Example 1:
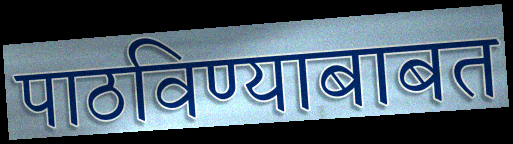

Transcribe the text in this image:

पाठविण्याबाबत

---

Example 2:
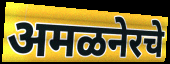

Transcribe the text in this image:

अमळनेरचे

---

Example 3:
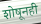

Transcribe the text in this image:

शोषूनही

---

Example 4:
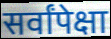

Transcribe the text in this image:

सर्वांपेक्षा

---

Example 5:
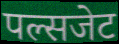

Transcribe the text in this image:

पल्सजेट